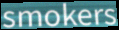
smokers